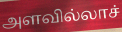
அளவில்லாச்